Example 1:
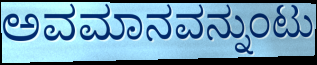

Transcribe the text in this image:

ಅವಮಾನವನ್ನುಂಟು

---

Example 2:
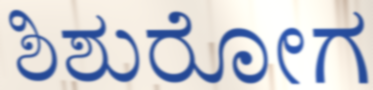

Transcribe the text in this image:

ಶಿಶುರೋಗ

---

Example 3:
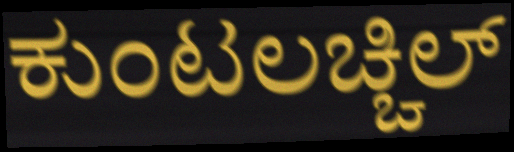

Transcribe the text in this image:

ಕುಂಟಲಚ್ಚಿಲ್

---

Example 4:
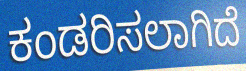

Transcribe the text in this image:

ಕಂಡರಿಸಲಾಗಿದೆ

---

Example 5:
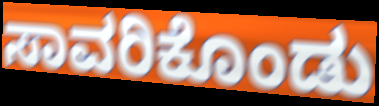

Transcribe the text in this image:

ಸಾವರಿಕೊಂಡು